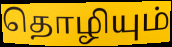
தொழியும்